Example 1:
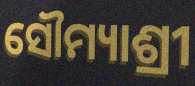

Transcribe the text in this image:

ସୌମ୍ୟାଶ୍ରୀ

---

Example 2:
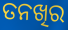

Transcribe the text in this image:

ତନଖିର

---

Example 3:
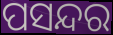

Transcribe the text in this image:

ପସନ୍ଦର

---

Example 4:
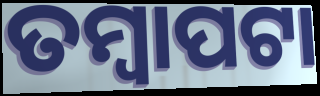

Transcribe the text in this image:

ତମ୍ବାପଟା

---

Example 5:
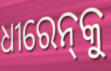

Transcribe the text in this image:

ଧୀରେନ୍‌କୁ